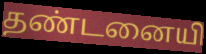
தண்டனையி